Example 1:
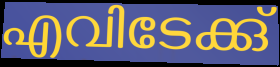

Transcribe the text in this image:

എവിടേക്കു്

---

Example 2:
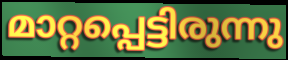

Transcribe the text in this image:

മാറ്റപ്പെട്ടിരുന്നു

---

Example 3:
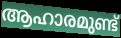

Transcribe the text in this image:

ആഹാരമുണ്ട്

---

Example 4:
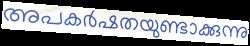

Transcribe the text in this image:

അപകർഷതയുണ്ടാക്കുന്നു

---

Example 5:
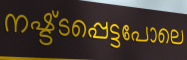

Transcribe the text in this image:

നഷ്ട്ടപ്പെട്ടപോലെ